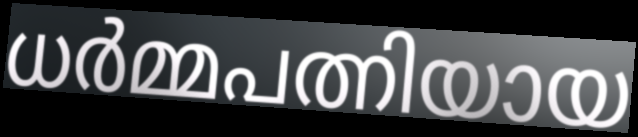
ധർമ്മപത്നിയായ